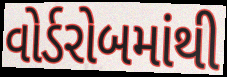
વોર્ડરોબમાંથી